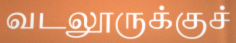
வடலூருக்குச்